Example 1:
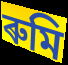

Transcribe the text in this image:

ৰুমি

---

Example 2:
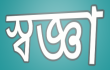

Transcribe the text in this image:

স্বজ্ঞা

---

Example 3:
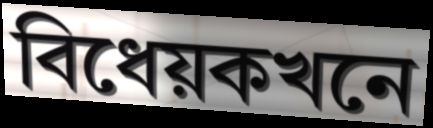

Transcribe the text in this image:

বিধেয়কখনে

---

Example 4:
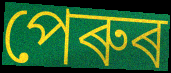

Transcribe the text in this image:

পেৰুৰ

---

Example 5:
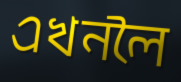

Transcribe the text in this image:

এখনলৈ